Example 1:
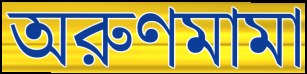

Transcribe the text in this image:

অরুণমামা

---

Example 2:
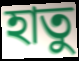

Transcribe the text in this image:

হাতু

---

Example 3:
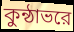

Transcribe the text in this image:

কুন্ঠাভরে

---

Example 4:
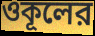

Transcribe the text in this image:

ওকূলের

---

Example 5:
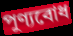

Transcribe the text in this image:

পুণ্যবোধ